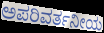
ಅಪರಿವರ್ತನೀಯ